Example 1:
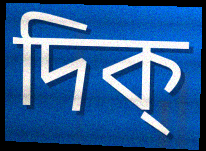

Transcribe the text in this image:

দিক্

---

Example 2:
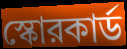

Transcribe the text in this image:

স্কোরকার্ড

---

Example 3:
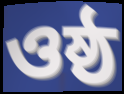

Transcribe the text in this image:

ওষ্ঠ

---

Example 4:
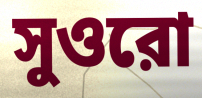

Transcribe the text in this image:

সুওরো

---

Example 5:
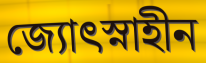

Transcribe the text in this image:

জ্যোৎস্নাহীন